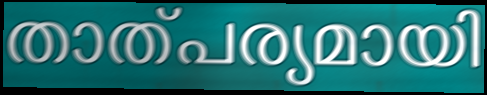
താത്പര്യമായി